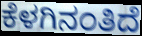
ಕೆಳಗಿನಂತಿದೆ